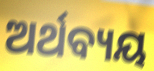
ଅର୍ଥବ୍ୟୟ